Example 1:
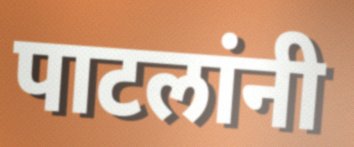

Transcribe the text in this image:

पाटलांनी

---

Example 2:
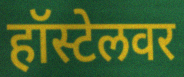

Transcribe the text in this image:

हॉस्टेलवर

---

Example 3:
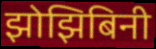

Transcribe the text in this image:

झोझिबिनी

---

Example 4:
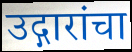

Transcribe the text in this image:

उद्गारांचा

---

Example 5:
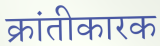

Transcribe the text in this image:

क्रांतीकारक